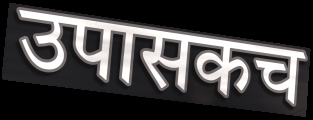
उपासकच